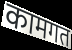
कामगत